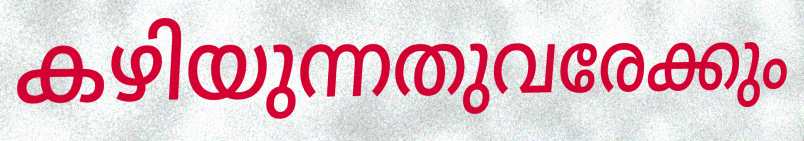
കഴിയുന്നതുവരേക്കും